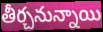
తీర్చనున్నాయి